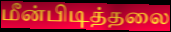
மீன்பிடித்தலை